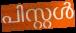
പിസ്റ്റൾ